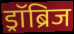
ड्रॉब्रिज